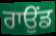
ਰਾਉਂਡ